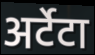
अर्टेटा